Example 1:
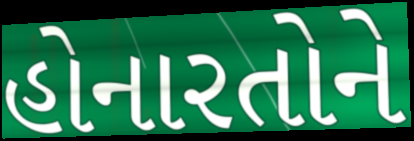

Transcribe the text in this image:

હોનારતોને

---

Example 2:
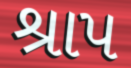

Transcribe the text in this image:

શ્રાપ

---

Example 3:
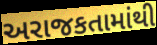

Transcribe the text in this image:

અરાજકતામાંથી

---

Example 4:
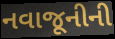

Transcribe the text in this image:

નવાજૂનીની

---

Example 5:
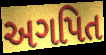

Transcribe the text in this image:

અગપિત